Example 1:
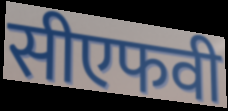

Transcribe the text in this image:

सीएफवी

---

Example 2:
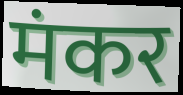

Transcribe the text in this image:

मंकर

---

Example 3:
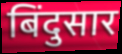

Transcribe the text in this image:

बिंदुसार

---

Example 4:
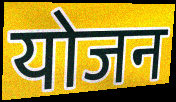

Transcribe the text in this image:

योजन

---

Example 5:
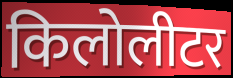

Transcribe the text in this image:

किलोलीटर